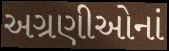
અગ્રણીઓનાં